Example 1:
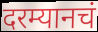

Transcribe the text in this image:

दरम्यानचं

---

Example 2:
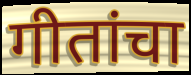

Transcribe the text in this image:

गीतांचा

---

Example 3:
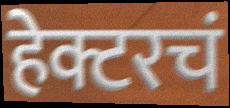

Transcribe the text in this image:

हेक्टरचं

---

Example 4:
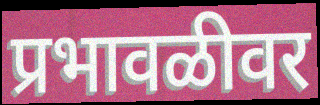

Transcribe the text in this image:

प्रभावळीवर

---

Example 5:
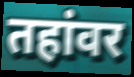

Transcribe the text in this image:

तहांवर